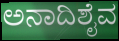
ಅನಾದಿಶೈವ